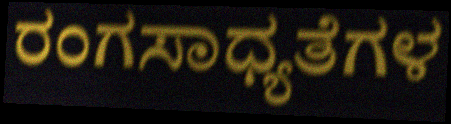
ರಂಗಸಾಧ್ಯತೆಗಳ